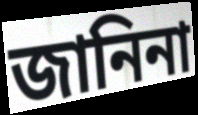
জানিনা